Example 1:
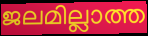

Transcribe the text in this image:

ജലമില്ലാത്ത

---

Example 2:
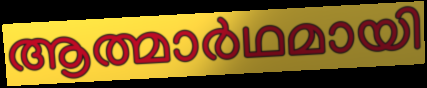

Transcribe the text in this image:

ആത്മാർഥമായി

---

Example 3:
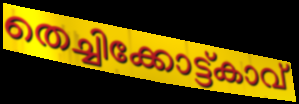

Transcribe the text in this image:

തെച്ചിക്കോട്ട്കാവ്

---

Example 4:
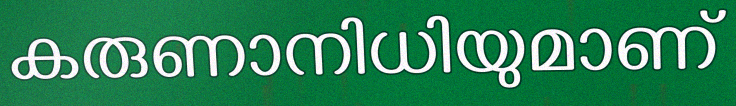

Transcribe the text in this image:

കരുണാനിധിയുമാണ്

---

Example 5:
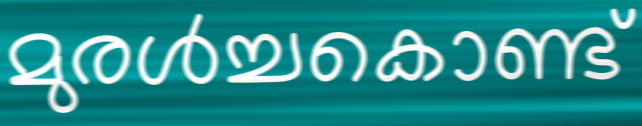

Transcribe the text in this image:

മുരൾച്ചകൊണ്ട്